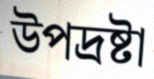
উপদ্রষ্টা